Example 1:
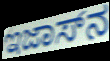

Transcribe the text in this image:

ಇಜಾಸ್‌ನ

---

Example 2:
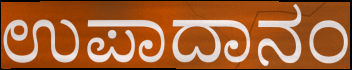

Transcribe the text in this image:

ಉಪಾದಾನಂ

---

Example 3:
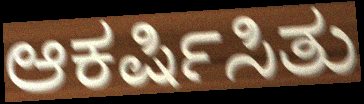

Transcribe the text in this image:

ಆಕರ್ಷಿಸಿತು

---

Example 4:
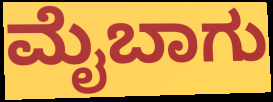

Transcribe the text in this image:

ಮೈಬಾಗು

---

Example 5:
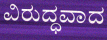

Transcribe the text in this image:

ವಿರುದ್ಧವಾದ